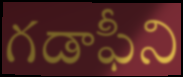
గడాఫీని